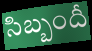
సిబ్బందీ